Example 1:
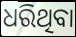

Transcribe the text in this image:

ଧରିଥିବା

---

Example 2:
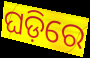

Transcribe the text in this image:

ଘଡ଼ିରେ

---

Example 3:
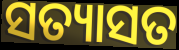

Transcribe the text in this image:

ସତ୍ୟାସତ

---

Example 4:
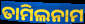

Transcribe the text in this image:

ତାମିଲନାମ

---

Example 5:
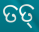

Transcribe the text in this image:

ତତ୍